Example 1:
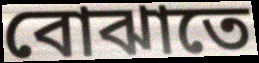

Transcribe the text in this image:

বোঝাতে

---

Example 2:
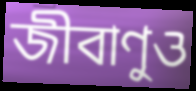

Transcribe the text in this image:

জীবাণুও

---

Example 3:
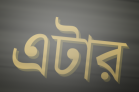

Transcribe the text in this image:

এটার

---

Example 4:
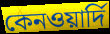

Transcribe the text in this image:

কেনওয়ার্দি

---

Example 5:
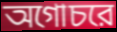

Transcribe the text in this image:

অগোচরে